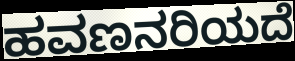
ಹವಣನರಿಯದೆ